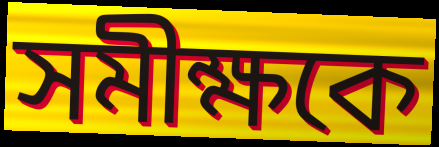
সমীক্ষকে